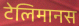
टेलिमानस